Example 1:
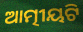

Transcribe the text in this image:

ଆତ୍ମୀୟଟି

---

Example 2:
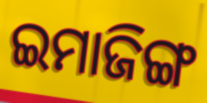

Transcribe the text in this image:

ଇମାଜିଙ୍ଗ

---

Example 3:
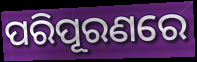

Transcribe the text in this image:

ପରିପୂରଣରେ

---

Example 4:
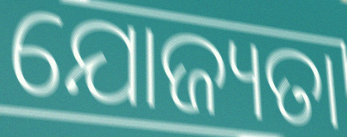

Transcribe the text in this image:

ଯୋଜ୍ୟତା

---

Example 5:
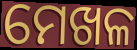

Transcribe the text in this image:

ମେଖଳ